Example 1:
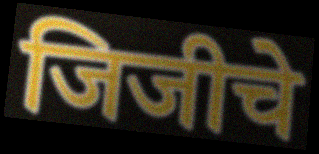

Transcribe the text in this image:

जिजीचे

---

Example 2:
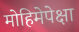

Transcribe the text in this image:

मोहिमेपेक्षा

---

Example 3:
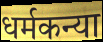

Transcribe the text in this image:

धर्मकन्या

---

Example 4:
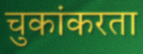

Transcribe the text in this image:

चुकांकरता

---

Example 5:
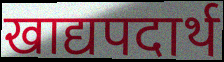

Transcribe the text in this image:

खाद्यपदार्थ